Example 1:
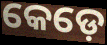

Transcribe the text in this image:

କେଡ଼େ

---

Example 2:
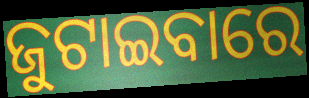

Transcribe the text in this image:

ଜୁଟାଇବାରେ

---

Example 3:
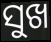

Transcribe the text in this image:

ସୁଖ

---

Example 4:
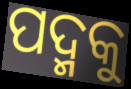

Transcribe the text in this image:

ପଦ୍ମକୁ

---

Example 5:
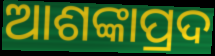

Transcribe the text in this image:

ଆଶଙ୍କାପ୍ରଦ